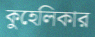
কুহেলিকার